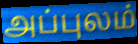
அப்புலம்